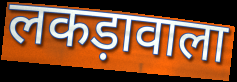
लकड़ावाला